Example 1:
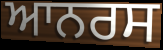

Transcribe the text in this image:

ਆਨਰਸ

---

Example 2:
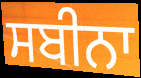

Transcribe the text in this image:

ਸਬੀਨਾ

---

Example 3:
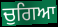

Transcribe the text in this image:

ਚੁਗਿਆ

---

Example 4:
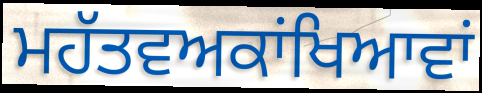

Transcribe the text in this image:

ਮਹੱਤਵਅਕਾਂਖਿਆਵਾਂ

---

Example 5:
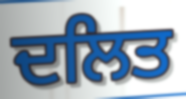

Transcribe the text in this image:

ਦਲਿਤ